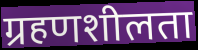
ग्रहणशीलता